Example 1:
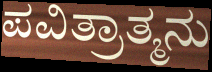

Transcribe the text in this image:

ಪವಿತ್ರಾತ್ಮನು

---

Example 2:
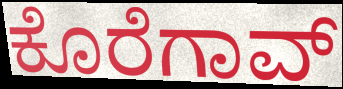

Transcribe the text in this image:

ಕೊರೆಗಾವ್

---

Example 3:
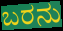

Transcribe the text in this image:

ಬರನು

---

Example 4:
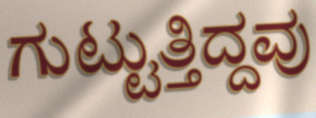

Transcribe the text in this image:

ಗುಟ್ಟುತ್ತಿದ್ದವು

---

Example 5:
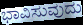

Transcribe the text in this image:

ಭಾವಿಸುವುದು